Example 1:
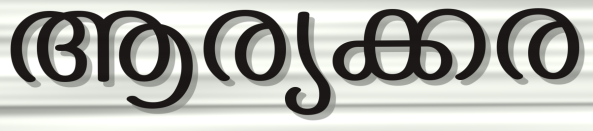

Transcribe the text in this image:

ആര്യക്കര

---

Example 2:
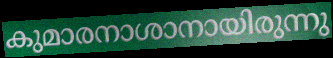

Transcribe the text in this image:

കുമാരനാശാനായിരുന്നു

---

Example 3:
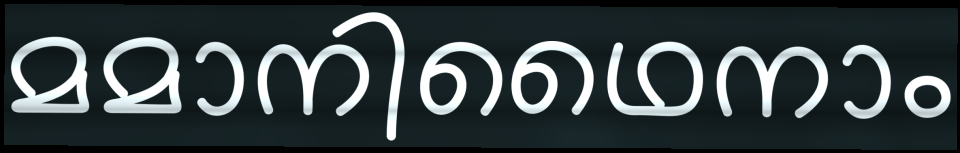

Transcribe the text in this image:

മമാനിഥൈനാം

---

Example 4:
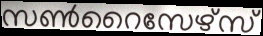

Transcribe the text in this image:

സൺറൈസേഴ്സ്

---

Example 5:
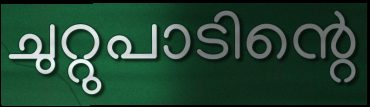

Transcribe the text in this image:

ചുറ്റുപാടിന്റെ